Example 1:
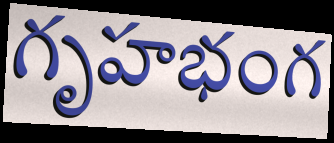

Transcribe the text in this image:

గృహభంగ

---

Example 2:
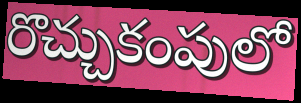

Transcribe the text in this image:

రొచ్చుకంపులో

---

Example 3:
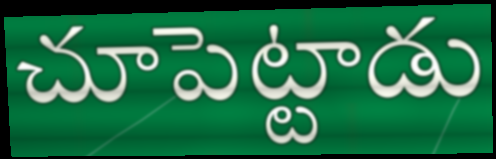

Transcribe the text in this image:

చూపెట్టాడు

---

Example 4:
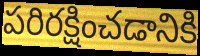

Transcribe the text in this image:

పరిరక్షించడానికి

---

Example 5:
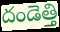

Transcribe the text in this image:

దండెత్తి